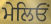
ਮੇਲਿਓਂ